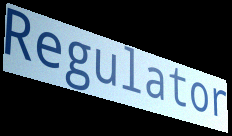
Regulator